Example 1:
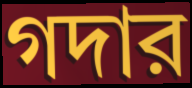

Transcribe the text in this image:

গদার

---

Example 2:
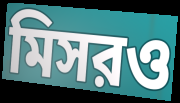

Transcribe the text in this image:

মিসরও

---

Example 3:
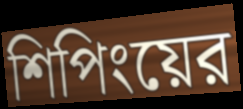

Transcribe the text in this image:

শিপিংয়ের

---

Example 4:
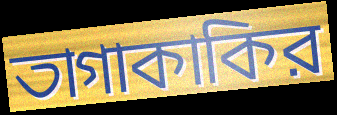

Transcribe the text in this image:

তাগাকাকির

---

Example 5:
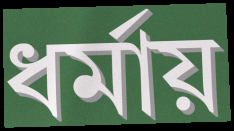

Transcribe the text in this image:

ধর্মায়